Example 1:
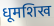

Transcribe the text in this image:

धूमशिख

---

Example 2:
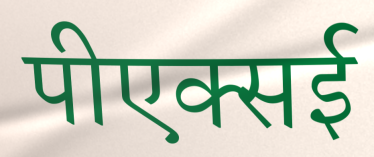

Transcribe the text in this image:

पीएक्सई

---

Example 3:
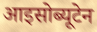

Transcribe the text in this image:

आइसोब्यूटेन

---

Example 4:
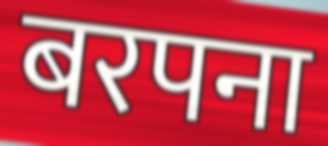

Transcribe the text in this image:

बरपना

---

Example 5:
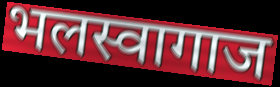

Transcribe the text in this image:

भलस्वागाज